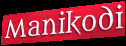
Manikodi